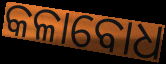
କଳାବୋଧ